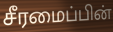
சீரமைப்பின்